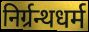
निर्ग्रन्थधर्म